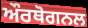
ਔਰਥੋਗਨਲ